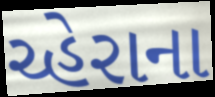
ચ્હેરાના